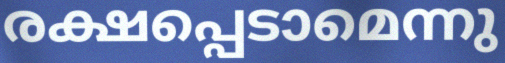
രക്ഷപ്പെടാമെന്നു